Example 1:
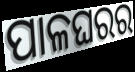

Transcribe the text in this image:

ପାଳଘରର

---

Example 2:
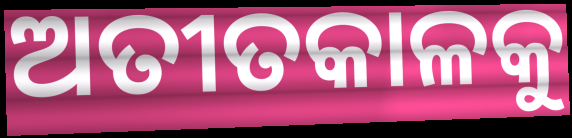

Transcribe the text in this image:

ଅତୀତକାଳକୁ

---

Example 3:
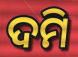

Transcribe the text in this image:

ଦମି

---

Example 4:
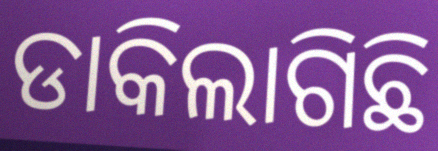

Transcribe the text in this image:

ଡାକିଲାଗିଛି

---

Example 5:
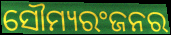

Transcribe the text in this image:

ସୌମ୍ୟରଂଜନର